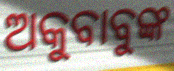
ଅକୁବାବୁଙ୍କ